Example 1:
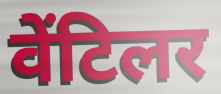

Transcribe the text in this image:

वेंटिलर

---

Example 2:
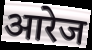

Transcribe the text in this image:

आरेज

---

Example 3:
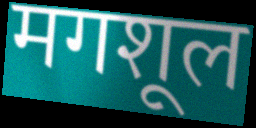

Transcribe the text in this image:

मगशूल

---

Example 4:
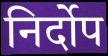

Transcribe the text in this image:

निर्दोप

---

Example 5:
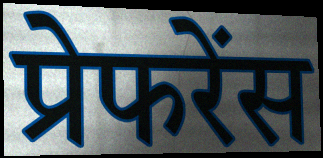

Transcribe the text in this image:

प्रेफरेंस